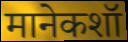
मानेकशॉ